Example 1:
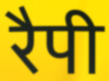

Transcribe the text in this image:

रैपी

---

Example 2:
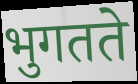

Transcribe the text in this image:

भुगतते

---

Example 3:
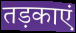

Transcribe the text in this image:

तड़काएं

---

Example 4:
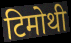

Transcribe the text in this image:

टिमोथी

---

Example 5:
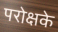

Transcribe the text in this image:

परोक्षके